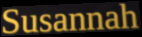
Susannah